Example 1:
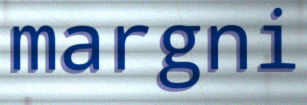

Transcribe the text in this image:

margni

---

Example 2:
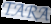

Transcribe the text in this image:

TARA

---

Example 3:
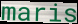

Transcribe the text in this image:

maris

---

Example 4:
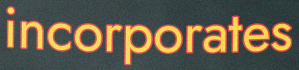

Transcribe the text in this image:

incorporates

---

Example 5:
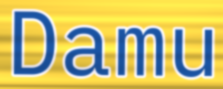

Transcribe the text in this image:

Damu